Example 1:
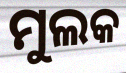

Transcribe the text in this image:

ମୁଲକ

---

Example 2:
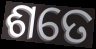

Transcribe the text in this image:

ଶତେ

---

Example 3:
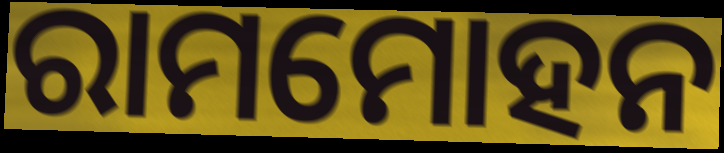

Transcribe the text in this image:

ରାମମୋହନ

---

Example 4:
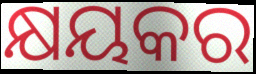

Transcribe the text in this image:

କ୍ଷୟକର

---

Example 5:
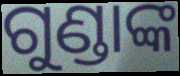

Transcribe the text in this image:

ଗୁଣ୍ଡାଙ୍କ